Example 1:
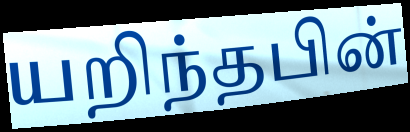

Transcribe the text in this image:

யறிந்தபின்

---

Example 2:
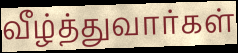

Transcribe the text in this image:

வீழ்த்துவார்கள்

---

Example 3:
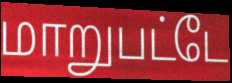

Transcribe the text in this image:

மாறுபட்டே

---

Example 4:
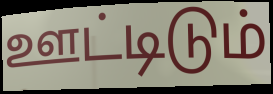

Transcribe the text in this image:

ஊட்டிடும்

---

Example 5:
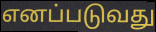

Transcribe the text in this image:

எனப்படுவது